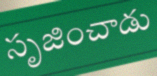
సృజించాడు